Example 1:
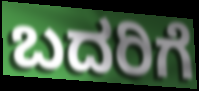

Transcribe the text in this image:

ಬದರಿಗೆ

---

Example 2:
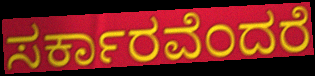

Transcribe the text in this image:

ಸರ್ಕಾರವೆಂದರೆ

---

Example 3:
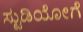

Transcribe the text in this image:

ಸ್ಟುಡಿಯೋಗೆ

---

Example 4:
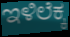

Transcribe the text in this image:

ಇಳಿಲೆಕ್ಕ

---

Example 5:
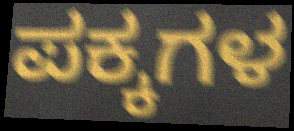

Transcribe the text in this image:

ಪಕ್ಕಗಳ